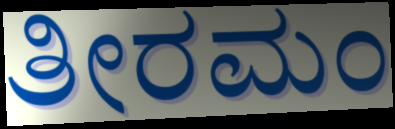
ತೀರಮಂ